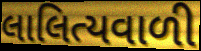
લાલિત્યવાળી